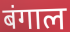
बंगाल